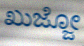
ಖುಜ್ಜೋ